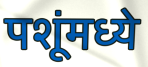
पशूंमध्ये